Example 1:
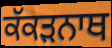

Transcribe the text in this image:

ਕੱਕੜਨਾਥ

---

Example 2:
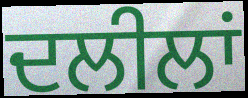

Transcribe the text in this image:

ਦਲੀਲਾਂ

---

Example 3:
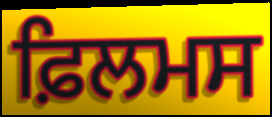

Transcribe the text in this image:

ਫ਼ਿਲਮਸ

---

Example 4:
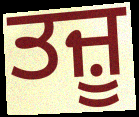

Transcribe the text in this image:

ਤਜ਼ੂ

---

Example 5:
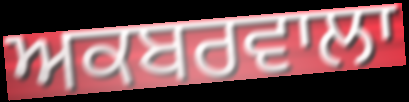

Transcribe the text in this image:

ਅਕਬਰਵਾਲਾ